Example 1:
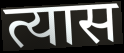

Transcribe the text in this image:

त्यास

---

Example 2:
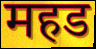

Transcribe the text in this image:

महड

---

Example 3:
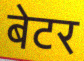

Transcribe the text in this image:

बेटर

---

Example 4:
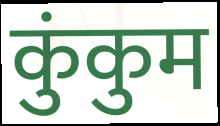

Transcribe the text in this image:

कुंकुम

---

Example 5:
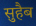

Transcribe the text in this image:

सुहैब